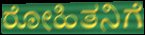
ರೋಹಿತನಿಗೆ